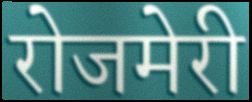
रोजमेरी